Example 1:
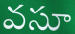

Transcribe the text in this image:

వసూ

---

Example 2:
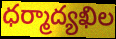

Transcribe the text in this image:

ధర్మాద్యఖిల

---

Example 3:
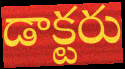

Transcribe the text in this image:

డాక్టరు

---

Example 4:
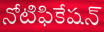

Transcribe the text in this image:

నోటిఫికేషన్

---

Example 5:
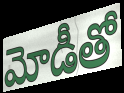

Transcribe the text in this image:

మోడీతో